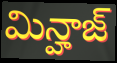
మిన్హాజ్